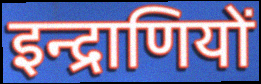
इन्द्राणियों